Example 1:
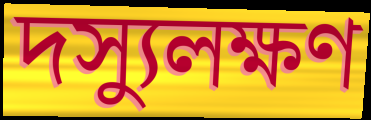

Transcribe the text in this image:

দস্যুলক্ষণ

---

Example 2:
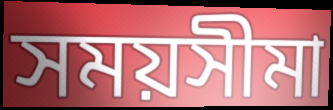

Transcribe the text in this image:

সময়সীমা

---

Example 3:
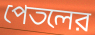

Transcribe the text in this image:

পেতলের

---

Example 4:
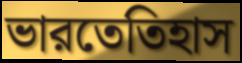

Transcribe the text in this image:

ভারতেতিহাস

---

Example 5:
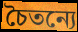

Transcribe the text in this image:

চৈতন্যে